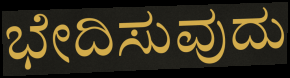
ಭೇದಿಸುವುದು